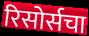
रिसोर्सचा